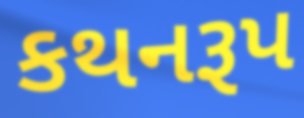
કથનરૂપ